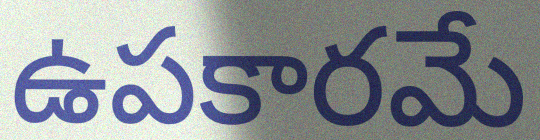
ఉపకారమే